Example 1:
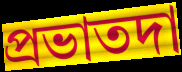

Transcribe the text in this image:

প্রভাতদা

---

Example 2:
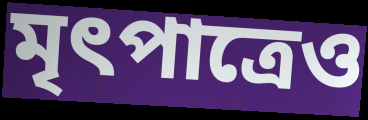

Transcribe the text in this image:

মৃৎপাত্রেও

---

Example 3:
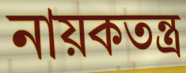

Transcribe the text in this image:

নায়কতন্ত্র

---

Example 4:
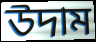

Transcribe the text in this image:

উদাম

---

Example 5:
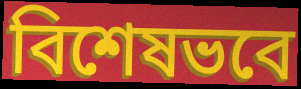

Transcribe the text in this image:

বিশেষভবে